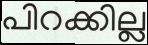
പിറക്കില്ല